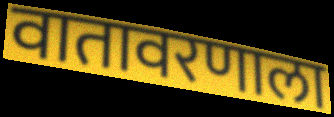
वातावरणाला